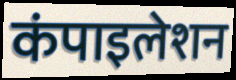
कंपाइलेशन